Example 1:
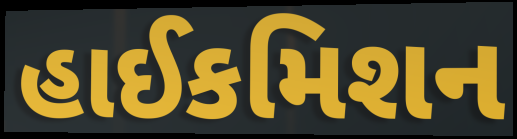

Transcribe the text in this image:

હાઈકમિશન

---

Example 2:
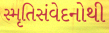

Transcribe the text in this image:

સ્મૃતિસંવેદનોથી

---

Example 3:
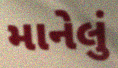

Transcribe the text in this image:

માનેલું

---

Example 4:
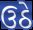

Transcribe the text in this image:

ઉઠે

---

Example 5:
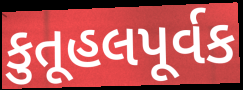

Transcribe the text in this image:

કુતૂહલપૂર્વક